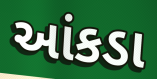
આંકડા